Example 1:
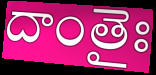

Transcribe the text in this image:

దాంతైః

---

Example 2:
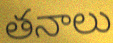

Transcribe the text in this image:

తనాలు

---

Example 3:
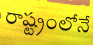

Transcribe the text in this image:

రాష్ట్రంలోనే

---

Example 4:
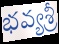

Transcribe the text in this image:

భవ్యశ్రీ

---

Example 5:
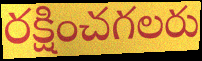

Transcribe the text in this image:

రక్షించగలరు